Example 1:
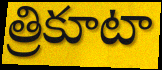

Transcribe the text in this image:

త్రికూటా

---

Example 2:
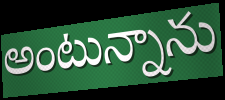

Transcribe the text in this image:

అంటున్నాను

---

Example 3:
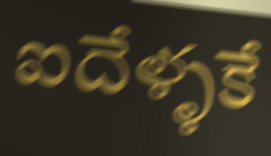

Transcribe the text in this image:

ఐదేళ్ళకే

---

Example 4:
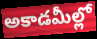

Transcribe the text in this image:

అకాడమీల్లో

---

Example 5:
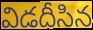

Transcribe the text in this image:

విడదీసిన